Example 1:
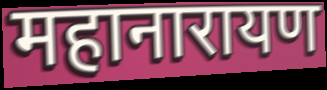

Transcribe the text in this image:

महानारायण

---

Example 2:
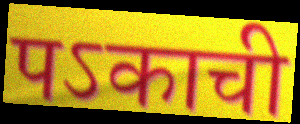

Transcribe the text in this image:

पऽकाची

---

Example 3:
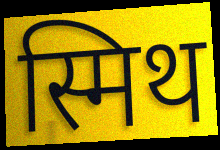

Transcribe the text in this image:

स्मिथ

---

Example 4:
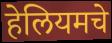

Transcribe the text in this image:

हेलियमचे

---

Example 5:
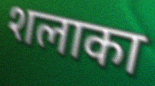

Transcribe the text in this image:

शलाका